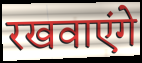
रखवाएंगे